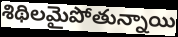
శిథిలమైపోతున్నాయి